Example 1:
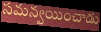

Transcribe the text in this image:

సమన్వయించాడు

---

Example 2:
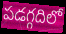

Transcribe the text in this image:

పడగ్గదిలో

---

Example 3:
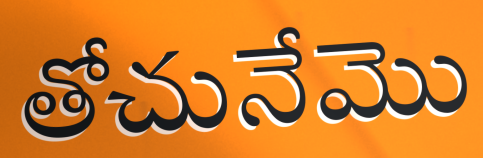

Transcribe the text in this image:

తోచునేమొ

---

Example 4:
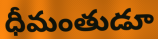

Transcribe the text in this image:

ధీమంతుడూ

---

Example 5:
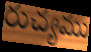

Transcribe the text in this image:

రుచ్యము